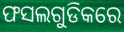
ଫସଲଗୁଡିକରେ